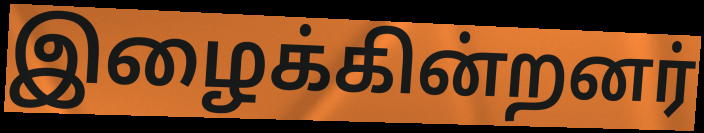
இழைக்கின்றனர்